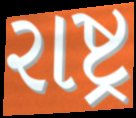
રાષ્ટ્ર